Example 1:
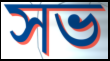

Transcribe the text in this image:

সভ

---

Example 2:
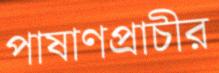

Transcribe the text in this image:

পাষাণপ্রাচীর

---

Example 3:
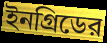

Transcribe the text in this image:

ইনগ্রিডের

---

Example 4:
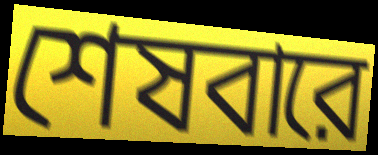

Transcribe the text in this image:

শেষবারে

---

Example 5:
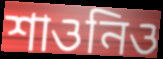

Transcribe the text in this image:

শাওনিও